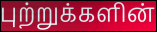
புற்றுக்களின்